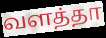
வளத்தா